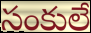
సంకులే